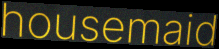
housemaid